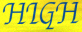
HIGH